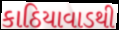
કાઠિયાવાડથી